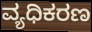
ವ್ಯಧಿಕರಣ